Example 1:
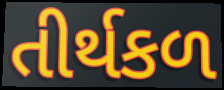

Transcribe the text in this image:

તીર્થકળ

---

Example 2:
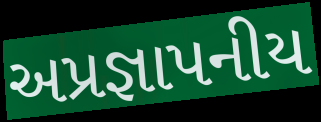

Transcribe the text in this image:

અપ્રજ્ઞાપનીય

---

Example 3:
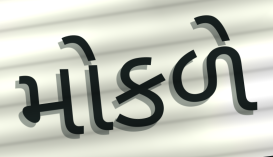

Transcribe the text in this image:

મોકળે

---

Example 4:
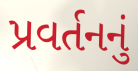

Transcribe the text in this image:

પ્રવર્તનનું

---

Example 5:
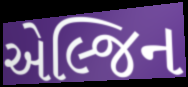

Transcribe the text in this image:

એલ્જિન